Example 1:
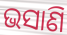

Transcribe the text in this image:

ଭସାଣି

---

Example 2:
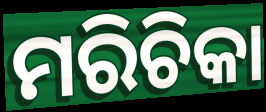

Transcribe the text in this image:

ମରିଚିକା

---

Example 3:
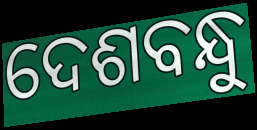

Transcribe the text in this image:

ଦେଶବନ୍ଧୁ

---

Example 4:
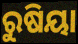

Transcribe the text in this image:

ରୁଷିୟା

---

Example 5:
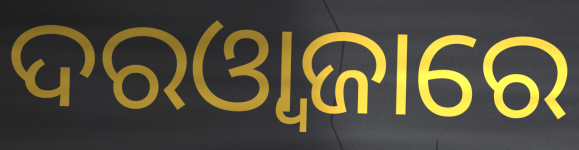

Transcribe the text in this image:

ଦରଓ୍ୱାଜାରେ